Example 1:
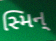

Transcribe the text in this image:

સ્મિન્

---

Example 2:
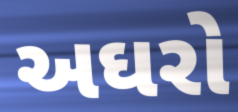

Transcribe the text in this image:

અઘરો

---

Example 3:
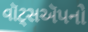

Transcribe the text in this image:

વૉટ્સઍપનો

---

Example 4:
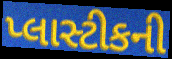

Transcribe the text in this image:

પ્લાસ્ટીકની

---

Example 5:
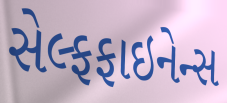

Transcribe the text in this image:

સેલ્ફફાઇનેન્સ